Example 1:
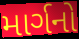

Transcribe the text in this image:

માર્ગનો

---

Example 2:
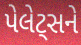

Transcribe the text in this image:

પેલેટ્સને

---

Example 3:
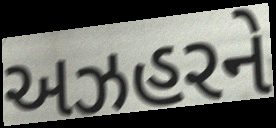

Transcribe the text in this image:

અઝહરને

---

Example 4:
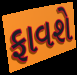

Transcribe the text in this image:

ફાવશે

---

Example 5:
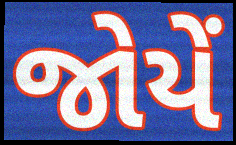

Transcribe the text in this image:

જોયેં